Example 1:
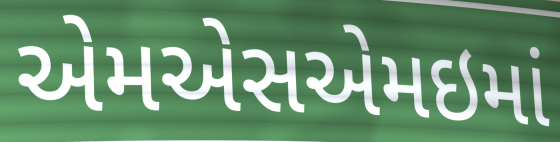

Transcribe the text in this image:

એમએસએમઇમાં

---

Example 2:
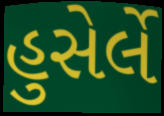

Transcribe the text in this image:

હુસેર્લે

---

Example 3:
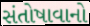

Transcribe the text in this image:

સંતોષાવાનો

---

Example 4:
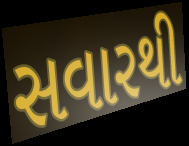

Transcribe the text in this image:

સવારથી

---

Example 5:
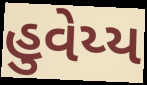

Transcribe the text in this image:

હુવેય્ય